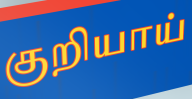
குறியாய்